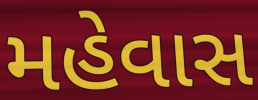
મહેવાસ